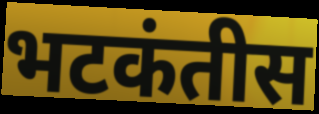
भटकंतीस